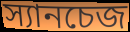
স্যানচেজ